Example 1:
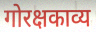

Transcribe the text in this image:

गोरक्षकाव्य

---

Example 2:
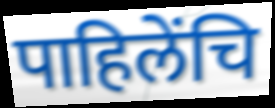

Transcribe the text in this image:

पाहिलेंचि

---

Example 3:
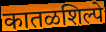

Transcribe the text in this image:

कातळशिल्पे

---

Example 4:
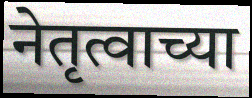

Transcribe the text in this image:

नेतृत्वाच्या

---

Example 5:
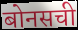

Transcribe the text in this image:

बोनसची